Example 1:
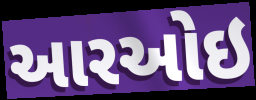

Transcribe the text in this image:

આરઓઇ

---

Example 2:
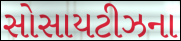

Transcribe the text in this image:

સોસાયટીઝના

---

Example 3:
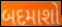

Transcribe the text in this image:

બદમાશો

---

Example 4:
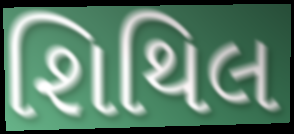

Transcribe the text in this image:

શિથિલ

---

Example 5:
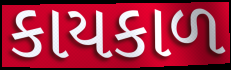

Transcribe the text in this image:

કાયકાળ